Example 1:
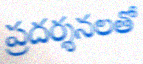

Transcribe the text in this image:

ప్రదర్శనలతో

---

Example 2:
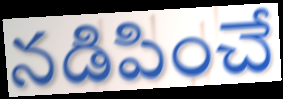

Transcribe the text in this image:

నడిపించే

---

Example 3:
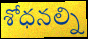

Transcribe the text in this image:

శోధనల్ని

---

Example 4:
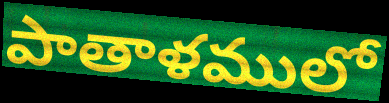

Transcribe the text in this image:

పాతాళములో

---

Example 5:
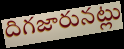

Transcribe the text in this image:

దిగజారునట్లు